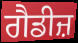
ਗੈਡੀਜ਼